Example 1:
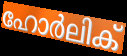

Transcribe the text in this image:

ഹോർലിക്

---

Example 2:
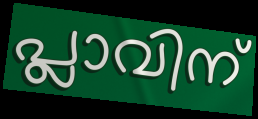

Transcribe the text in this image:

പ്ലാവിന്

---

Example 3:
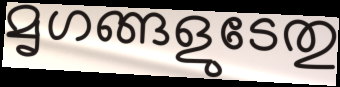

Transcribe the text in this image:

മൃഗങ്ങളുടേതു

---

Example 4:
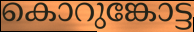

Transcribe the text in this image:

കൊറുങ്കോട്ട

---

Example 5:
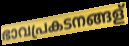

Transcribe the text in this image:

ഭാവപ്രകടനങ്ങള്